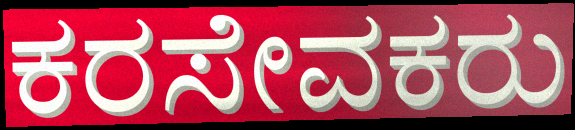
ಕರಸೇವಕರು